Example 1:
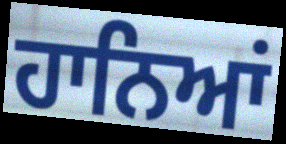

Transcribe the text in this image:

ਹਾਨਿਆਂ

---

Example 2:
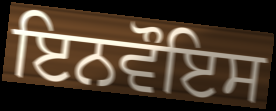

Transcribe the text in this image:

ਇਨਵੌਇਸ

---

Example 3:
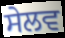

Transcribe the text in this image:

ਸੇਲਵ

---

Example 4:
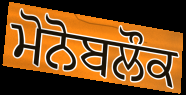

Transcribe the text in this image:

ਮੋਨੋਬਲੌਕ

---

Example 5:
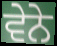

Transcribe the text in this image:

ਵੇਨੇ